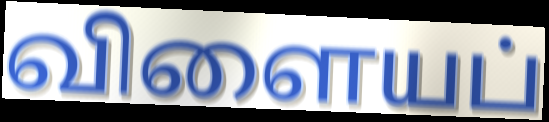
விளையப்